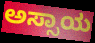
ಅಸ್ಸಾಯ